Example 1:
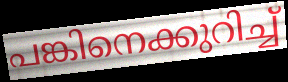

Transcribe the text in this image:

പങ്കിനെക്കുറിച്ച്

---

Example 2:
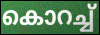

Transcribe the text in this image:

കൊറച്ച്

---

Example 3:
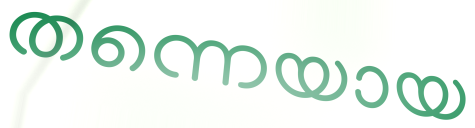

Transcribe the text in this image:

തന്നെയായ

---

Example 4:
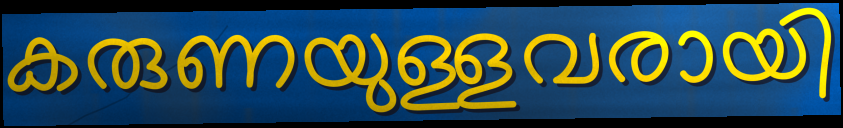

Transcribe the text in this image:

കരുണയുള്ളവരായി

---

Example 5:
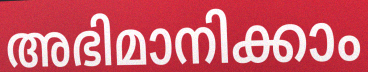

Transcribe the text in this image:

അഭിമാനിക്കാം